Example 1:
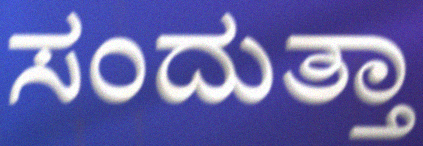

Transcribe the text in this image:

ಸಂದುತ್ತಾ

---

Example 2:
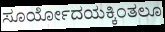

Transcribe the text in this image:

ಸೂರ್ಯೋದಯಕ್ಕಿಂತಲೂ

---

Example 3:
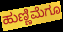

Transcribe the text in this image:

ಹುಣ್ಣಿಮೆಗೂ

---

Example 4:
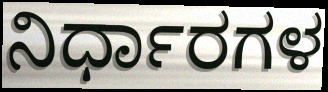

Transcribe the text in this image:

ನಿರ್ಧಾರಗಳ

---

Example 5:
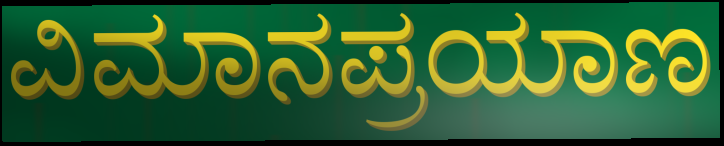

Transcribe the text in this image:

ವಿಮಾನಪ್ರಯಾಣ